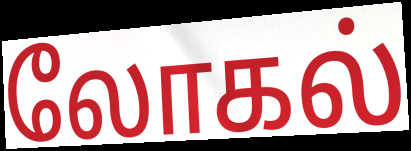
லோகல்